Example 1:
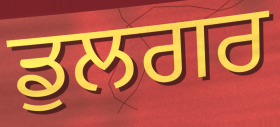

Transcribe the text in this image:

ਡੁਲਗਰ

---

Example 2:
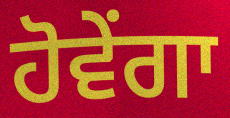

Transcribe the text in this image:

ਹੋਵੇਂਗਾ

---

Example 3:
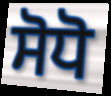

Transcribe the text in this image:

ਸੋਧੋ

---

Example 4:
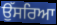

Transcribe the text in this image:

ਉੱਸਰਿਆ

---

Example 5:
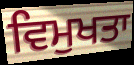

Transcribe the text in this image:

ਵਿਮੁਖਤਾ